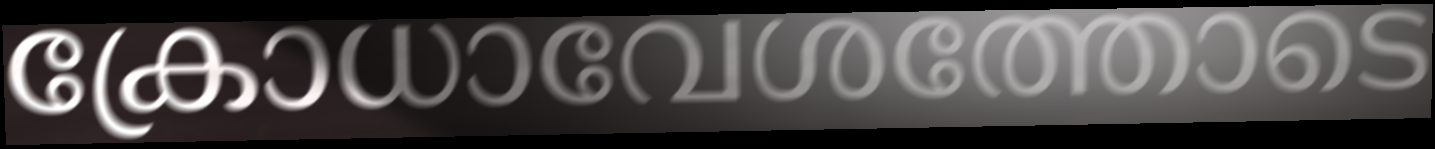
ക്രോധാവേശത്തോടെ